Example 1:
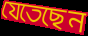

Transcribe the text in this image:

যেতেছেন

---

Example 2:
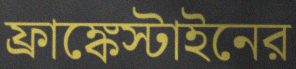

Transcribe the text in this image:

ফ্রাঙ্কেস্টাইনের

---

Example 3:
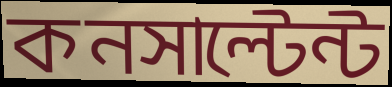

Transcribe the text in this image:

কনসাল্টেন্ট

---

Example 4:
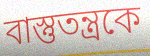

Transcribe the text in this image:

বাস্তুতন্ত্রকে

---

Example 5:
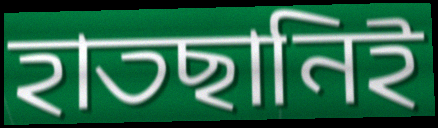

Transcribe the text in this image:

হাতছানিই